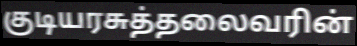
குடியரசுத்தலைவரின்